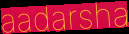
aadarsha